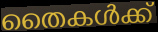
തൈകൾക്ക്